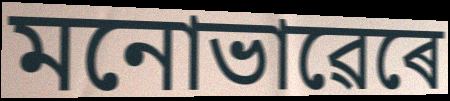
মনোভাৱেৰে